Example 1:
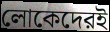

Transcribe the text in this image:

লোকেদেরই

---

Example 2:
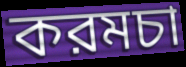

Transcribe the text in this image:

করমচা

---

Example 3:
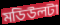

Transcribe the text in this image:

মডিউলটা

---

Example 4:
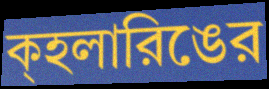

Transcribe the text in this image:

ক্হলারিঙের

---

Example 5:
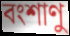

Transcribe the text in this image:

বংশাণু